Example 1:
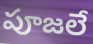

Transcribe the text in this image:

పూజలే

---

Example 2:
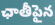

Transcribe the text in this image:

ఛాతీపైన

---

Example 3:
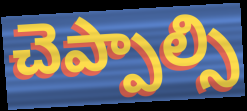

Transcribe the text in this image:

చెప్పాల్సి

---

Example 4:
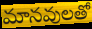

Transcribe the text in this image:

మానవులతో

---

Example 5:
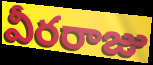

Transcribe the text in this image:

వీరరాజు